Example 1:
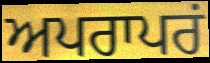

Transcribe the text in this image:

ਅਪਰਾਪਰਂ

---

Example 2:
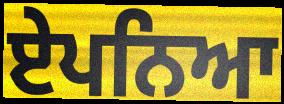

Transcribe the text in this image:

ਏਪਨਿਆ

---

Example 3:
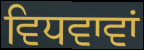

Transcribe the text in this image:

ਵਿਧਵਾਵਾਂ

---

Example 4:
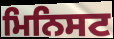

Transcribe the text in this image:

ਮਿਨਿਸਟ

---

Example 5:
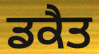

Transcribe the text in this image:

ਡਕੈਤ